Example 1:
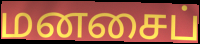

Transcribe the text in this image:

மனசைப்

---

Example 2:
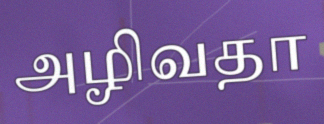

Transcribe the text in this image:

அழிவதா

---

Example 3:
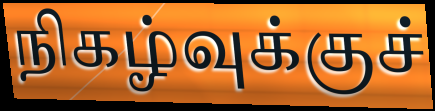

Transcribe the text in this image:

நிகழ்வுக்குச்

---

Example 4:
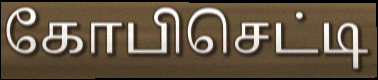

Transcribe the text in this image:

கோபிசெட்டி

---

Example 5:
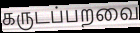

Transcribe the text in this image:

கருடப்பறவை